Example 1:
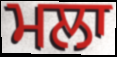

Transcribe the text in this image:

ਮਲਾ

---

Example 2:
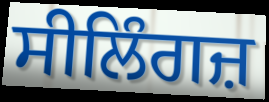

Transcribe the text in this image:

ਸੀਲਿੰਗਜ਼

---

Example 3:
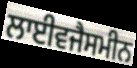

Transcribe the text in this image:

ਲਾਈਵਜੈਸਮੀਨ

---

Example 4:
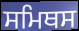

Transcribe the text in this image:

ਸਮਿਥਸ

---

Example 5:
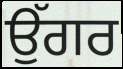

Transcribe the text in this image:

ਉੱਗਰ